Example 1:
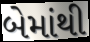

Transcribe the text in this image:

બેમાંથી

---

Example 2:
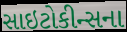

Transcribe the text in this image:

સાઇટોકીન્સના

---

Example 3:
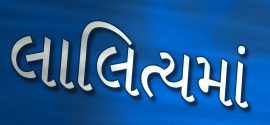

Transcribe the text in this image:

લાલિત્યમાં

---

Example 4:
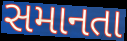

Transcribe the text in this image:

સમાનતા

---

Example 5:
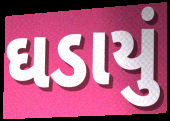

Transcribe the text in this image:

ઘડાયું